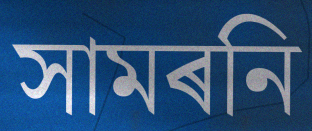
সামৰনি